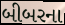
બીબરના